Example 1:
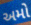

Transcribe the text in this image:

અમો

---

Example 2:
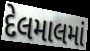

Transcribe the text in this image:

દેલમાલમાં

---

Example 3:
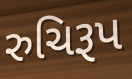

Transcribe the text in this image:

રુચિરૂપ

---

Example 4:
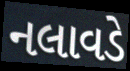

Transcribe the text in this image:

નલાવડે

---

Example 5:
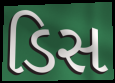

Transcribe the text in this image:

ડિસ